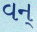
વન્